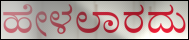
ಹೇಳಲಾರದು